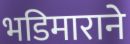
भडिमाराने